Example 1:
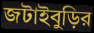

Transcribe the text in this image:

জটাইবুড়ির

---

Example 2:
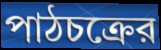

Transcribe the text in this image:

পাঠচক্রের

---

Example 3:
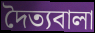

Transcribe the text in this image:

দৈত্যবালা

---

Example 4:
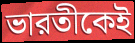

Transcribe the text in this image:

ভারতীকেই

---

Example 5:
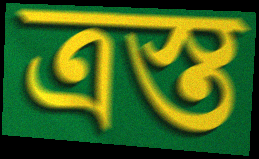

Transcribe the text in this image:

ত্রস্ত